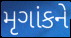
મૃગાંકને